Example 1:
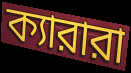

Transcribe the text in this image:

ক্যারারা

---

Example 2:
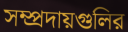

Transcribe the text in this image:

সম্প্রদায়গুলির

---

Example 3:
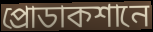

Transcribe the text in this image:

প্রোডাকশানে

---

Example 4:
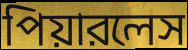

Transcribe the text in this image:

পিয়ারলেস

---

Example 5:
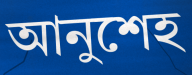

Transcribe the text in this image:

আনুশেহ